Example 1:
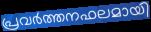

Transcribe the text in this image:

പ്രവർത്തനഫലമായി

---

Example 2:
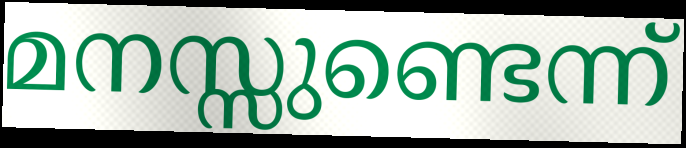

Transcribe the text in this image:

മനസ്സുണ്ടെന്ന്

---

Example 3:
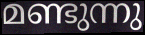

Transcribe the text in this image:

മണ്ടുന്നു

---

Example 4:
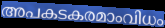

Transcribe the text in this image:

അപകടകരമാംവിധം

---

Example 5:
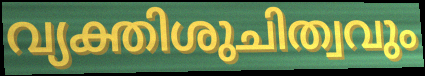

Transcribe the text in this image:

വ്യക്തിശുചിത്വവും